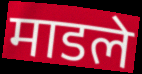
माडले